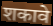
शकावे